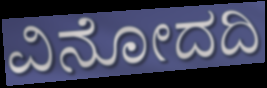
ವಿನೋದದಿ